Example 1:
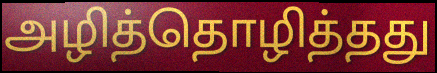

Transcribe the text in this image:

அழித்தொழித்தது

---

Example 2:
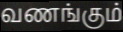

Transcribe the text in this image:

வணங்கும்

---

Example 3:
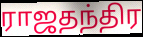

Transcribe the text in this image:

ராஜதந்திர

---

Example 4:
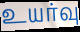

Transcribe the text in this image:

உயர்வு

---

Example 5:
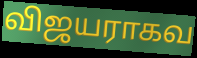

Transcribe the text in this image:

விஜயராகவ